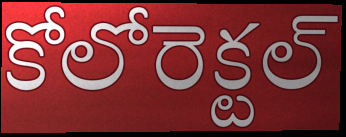
కోలోరెక్టల్